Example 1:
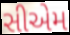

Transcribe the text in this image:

સીએમ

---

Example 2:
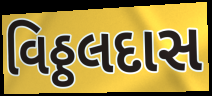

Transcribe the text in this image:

વિઠ્ઠલદાસ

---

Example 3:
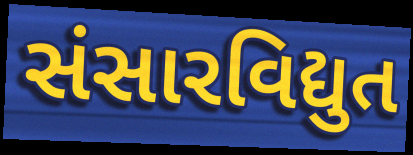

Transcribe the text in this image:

સંસારવિદ્યુત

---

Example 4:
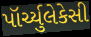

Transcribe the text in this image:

પૉર્ચ્યુલેકેસી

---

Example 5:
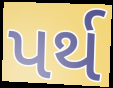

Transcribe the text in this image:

પર્થ